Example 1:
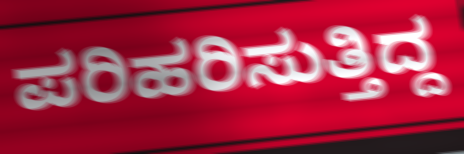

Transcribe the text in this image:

ಪರಿಹರಿಸುತ್ತಿದ್ದ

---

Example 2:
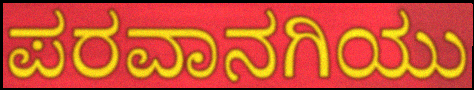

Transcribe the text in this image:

ಪರವಾನಗಿಯು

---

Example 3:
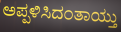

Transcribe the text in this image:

ಅಪ್ಪಳಿಸಿದಂತಾಯ್ತು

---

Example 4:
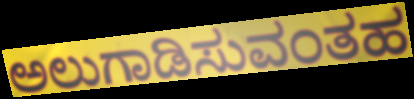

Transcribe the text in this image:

ಅಲುಗಾಡಿಸುವಂತಹ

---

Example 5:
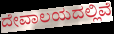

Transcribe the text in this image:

ದೇವಾಲಯದಲ್ಲಿವೆ